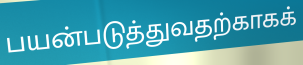
பயன்படுத்துவதற்காகக்